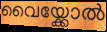
വൈയ്ക്കോൽ